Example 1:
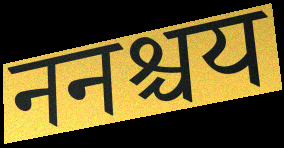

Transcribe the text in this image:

ननश्चय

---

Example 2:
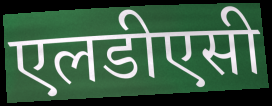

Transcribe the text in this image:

एलडीएसी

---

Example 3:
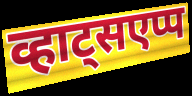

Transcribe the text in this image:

व्हाट्सएप्प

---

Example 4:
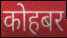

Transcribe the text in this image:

कोहबर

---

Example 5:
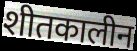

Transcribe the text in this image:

शीतकालीन